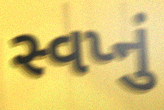
સ્વપ્નું